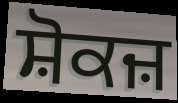
ਸ਼ੋਕਜ਼